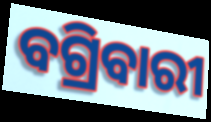
ବଗ୍ରିବାରୀ